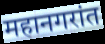
महानगरांत